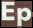
Ep